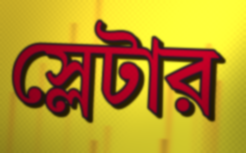
স্লেটার